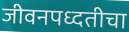
जीवनपध्दतीचा